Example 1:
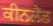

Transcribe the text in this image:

ਕੀਨਲੈਂਡ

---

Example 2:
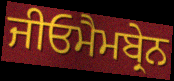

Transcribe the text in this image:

ਜੀਓਮੈਮਬ੍ਰੇਨ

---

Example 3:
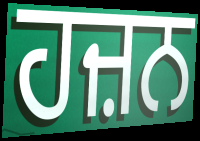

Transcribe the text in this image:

ਹਜ਼ਨ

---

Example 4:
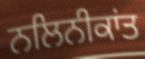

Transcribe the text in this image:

ਨਲਿਨੀਕਾਂਤ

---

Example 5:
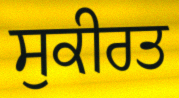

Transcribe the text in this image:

ਸੁਕੀਰਤ